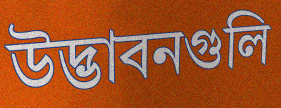
উদ্ভাবনগুলি